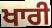
ਖਾਰੀ